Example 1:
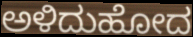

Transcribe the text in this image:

ಅಳಿದುಹೋದ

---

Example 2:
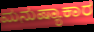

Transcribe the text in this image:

ಮನುಷ್ಯಾಕಾರ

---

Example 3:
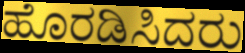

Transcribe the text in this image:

ಹೊರಡಿಸಿದರು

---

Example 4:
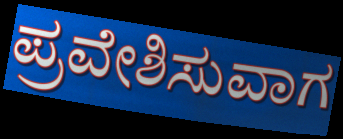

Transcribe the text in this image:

ಪ್ರವೇಶಿಸುವಾಗ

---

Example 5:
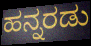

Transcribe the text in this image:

ಹನ್ನರಡು